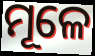
ମୂଳେ